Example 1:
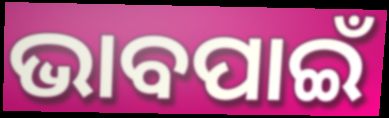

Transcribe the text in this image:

ଭାବପାଇଁ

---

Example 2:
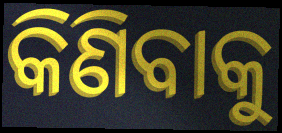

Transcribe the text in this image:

କିଣିବାକୁ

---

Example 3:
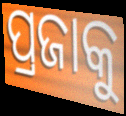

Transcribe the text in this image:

ପ୍ରଜାକୁ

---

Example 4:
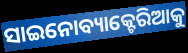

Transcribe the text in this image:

ସାଇନୋବ୍ୟାକ୍ଟେରିଆକୁ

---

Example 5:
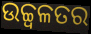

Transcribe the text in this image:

ଉଚ୍ଚ୍ୱଳତର